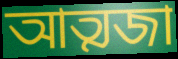
আত্মজা